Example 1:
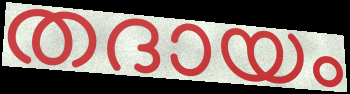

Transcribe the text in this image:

തദായം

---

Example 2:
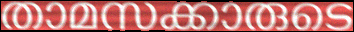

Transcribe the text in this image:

താമസക്കാരുടെ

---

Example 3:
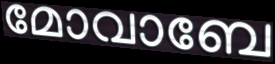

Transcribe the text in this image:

മോവാബേ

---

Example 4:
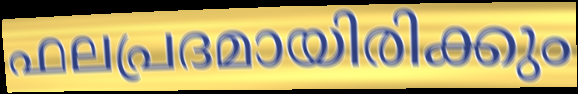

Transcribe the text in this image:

ഫലപ്രദമായിരിക്കും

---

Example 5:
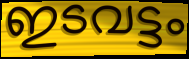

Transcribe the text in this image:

ഇടവട്ടം